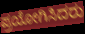
ಪ್ರಯೋಗಿಸಿದರು